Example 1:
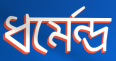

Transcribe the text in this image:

ধর্মেন্দ্র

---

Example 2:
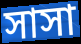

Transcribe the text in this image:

সাসা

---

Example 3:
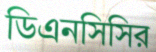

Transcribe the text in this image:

ডিএনসিসির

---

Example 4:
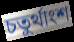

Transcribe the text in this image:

চতুর্থাংশ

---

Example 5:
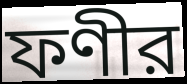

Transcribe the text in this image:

ফণীর